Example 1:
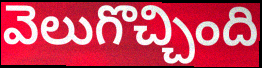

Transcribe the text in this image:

వెలుగొచ్చింది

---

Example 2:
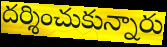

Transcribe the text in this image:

దర్శించుకున్నారు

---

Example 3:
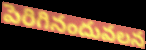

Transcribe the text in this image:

పెరిగినందువలన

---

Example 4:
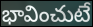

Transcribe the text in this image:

భావించుటే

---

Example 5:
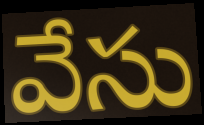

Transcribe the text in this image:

వేసు